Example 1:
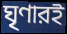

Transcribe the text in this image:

ঘৃণারই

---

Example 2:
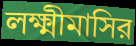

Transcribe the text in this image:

লক্ষ্মীমাসির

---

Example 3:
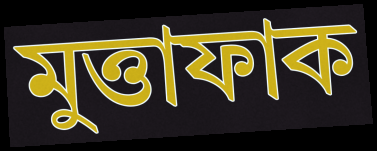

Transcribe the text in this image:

মুত্তাফাক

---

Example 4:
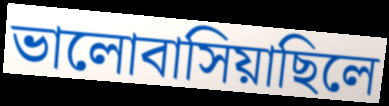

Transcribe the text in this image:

ভালোবাসিয়াছিলে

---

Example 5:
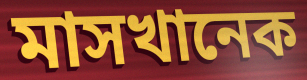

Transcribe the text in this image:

মাসখানেক